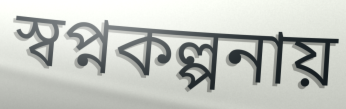
স্বপ্নকল্পনায়